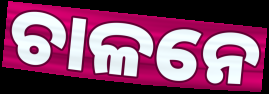
ଚାଳନେ